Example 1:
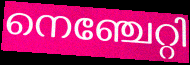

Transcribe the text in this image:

നെഞ്ചേറ്റി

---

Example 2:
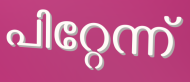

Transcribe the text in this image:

പിറ്റേന്ന്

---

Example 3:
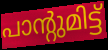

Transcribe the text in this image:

പാന്റുമിട്ട്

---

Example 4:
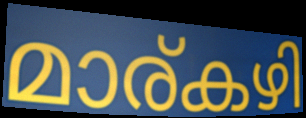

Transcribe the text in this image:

മാര്കഴി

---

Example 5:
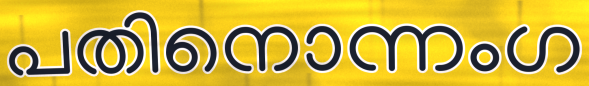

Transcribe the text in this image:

പതിനൊന്നംഗ